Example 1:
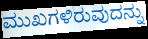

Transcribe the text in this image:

ಮುಖಗಳಿರುವುದನ್ನು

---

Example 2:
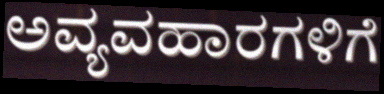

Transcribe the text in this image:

ಅವ್ಯವಹಾರಗಳಿಗೆ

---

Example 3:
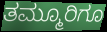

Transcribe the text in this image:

ತಮ್ಮೂರಿಗೂ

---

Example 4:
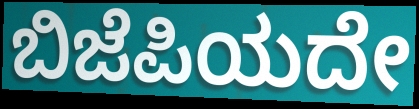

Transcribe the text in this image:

ಬಿಜೆಪಿಯದೇ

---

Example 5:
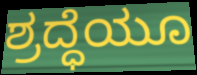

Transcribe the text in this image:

ಶ್ರದ್ಧೆಯೂ